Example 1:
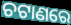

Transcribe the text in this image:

ଚଟାଣରେ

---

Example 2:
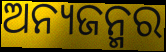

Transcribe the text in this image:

ଅନ୍ୟଜନ୍ମର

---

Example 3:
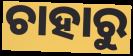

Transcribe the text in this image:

ଚାହାରୁ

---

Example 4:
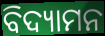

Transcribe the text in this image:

ବିଦ୍ୟାମନ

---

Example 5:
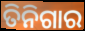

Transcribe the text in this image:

ତିନିଗାର